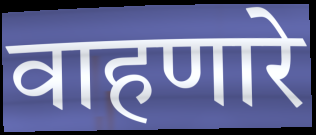
वाहणारे